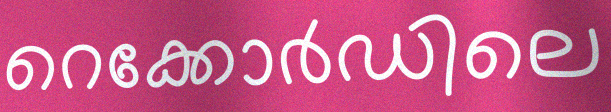
റെക്കോർഡിലെ